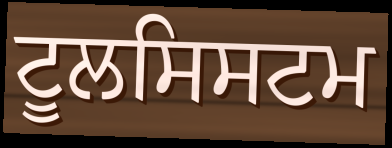
ਟੂਲਸਿਸਟਮ